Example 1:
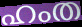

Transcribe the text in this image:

ഹംത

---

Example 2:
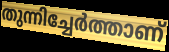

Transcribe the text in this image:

തുന്നിച്ചേർത്താണ്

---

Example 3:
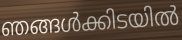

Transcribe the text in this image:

ഞങ്ങൾക്കിടയിൽ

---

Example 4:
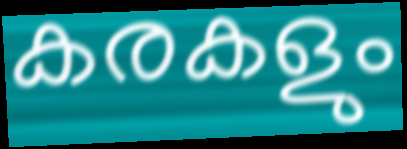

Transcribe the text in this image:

കരകളും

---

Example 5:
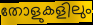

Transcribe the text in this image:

തോളുകളിലും